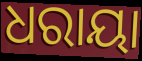
ଧରାୟା